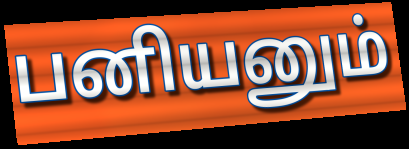
பனியனும்